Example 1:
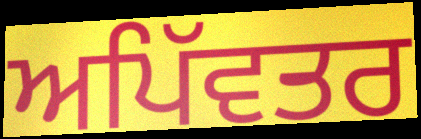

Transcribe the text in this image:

ਅਪਿੱਵਤਰ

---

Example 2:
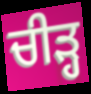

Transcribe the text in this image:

ਚੀੜ੍ਹ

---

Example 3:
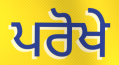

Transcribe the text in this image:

ਪਰੋਖੇ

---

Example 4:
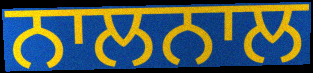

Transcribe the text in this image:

ਨਾਲਨਾਲ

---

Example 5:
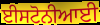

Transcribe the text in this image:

ਈਸਟੋਨੀਆਈ